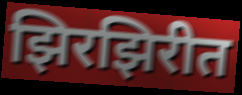
झिरझिरीत